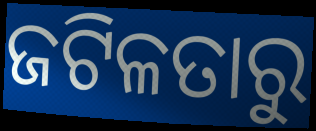
ଜଟିଳତାରୁ